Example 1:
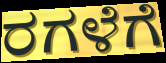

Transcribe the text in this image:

ರಗಳೆಗೆ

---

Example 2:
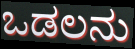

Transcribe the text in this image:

ಒಡಲನು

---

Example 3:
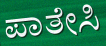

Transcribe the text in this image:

ಪಾತೇಸಿ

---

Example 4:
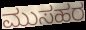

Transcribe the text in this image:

ಮುಸಹರ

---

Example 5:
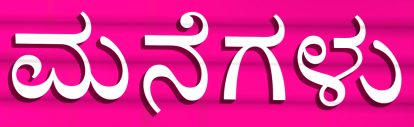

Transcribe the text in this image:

ಮನೆಗಳು